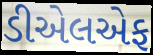
ડીએલએફ